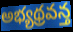
అభ్యథ్రవన్త